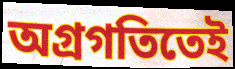
অগ্রগতিতেই